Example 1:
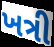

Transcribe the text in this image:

ખત્રી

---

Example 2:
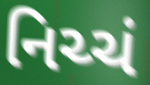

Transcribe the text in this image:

નિચ્ચં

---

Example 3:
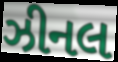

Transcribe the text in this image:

ઝીનલ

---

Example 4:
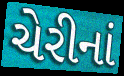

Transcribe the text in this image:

ચેરીનાં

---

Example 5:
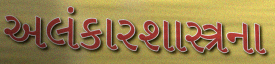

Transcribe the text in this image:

અલંકારશાસ્ત્રના